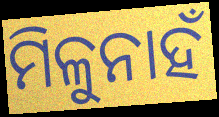
ମିଳୁନାହଁ